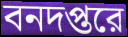
বনদপ্তরে